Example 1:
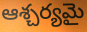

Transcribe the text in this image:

ఆశ్చర్యమై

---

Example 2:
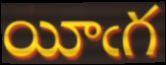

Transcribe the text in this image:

యీఁగ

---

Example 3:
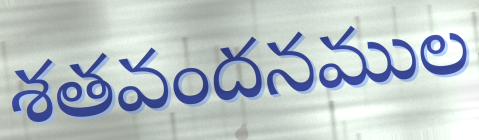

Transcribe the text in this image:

శతవందనముల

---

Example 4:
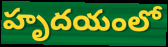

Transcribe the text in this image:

హృదయంలో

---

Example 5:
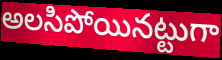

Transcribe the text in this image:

అలసిపోయినట్టుగా